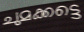
ചുമക്കട്ടെ